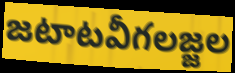
జటాటవీగలజ్జల